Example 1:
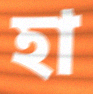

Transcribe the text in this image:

হা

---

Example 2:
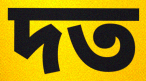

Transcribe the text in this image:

দত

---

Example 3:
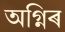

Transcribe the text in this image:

অগ্নিৰ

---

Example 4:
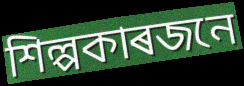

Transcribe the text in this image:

শিল্পকাৰজনে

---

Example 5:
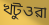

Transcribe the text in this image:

খটুওৱা